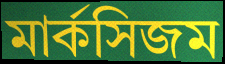
মার্কসিজম